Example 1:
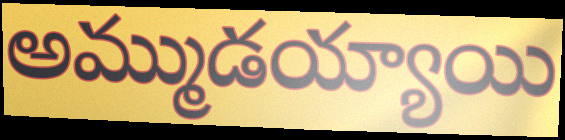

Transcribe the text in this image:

అమ్ముడయ్యాయి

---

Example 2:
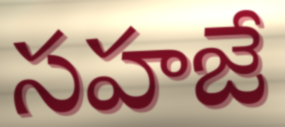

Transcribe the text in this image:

సహజే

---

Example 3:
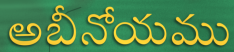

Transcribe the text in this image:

అబీనోయము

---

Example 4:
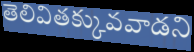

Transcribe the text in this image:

తెలివితక్కువవాడని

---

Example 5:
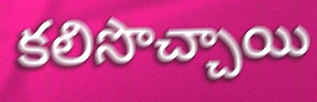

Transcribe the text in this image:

కలిసొచ్చాయి